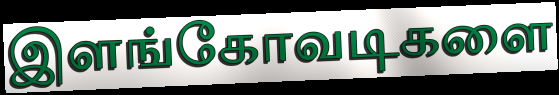
இளங்கோவடிகளை